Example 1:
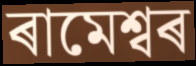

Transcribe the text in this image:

ৰামেশ্বৰ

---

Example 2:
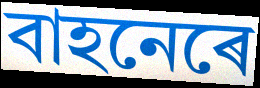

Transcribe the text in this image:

বাহনেৰে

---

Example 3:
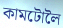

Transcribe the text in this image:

কামটোলৈ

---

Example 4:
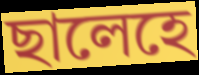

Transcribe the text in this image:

ছালেহে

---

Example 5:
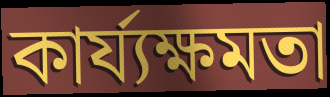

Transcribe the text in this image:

কাৰ্য্যক্ষমতা